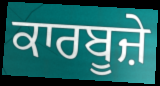
ਕਾਰਬੂਜ਼ੇ